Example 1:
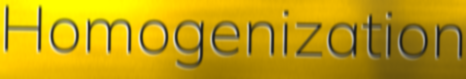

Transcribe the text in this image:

Homogenization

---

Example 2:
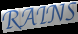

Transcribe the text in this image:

RAINS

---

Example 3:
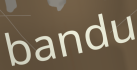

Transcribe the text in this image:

bandu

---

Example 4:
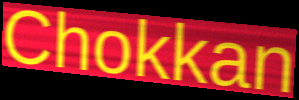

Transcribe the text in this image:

Chokkan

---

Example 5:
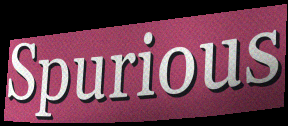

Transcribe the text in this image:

Spurious